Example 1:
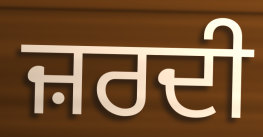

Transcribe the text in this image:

ਜ਼ਰਦੀ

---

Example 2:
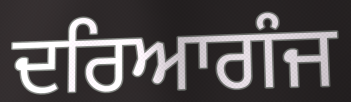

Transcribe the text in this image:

ਦਰਿਆਗੰਜ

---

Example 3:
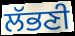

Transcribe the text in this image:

ਲੱਭਣੀ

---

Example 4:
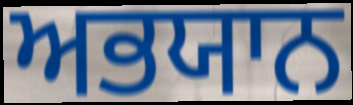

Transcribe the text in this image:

ਅਭਯਾਨ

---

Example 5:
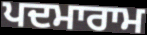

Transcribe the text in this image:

ਪਦਮਾਰਾਮ